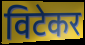
विटेकर